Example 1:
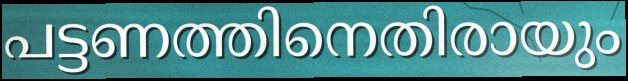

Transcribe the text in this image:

പട്ടണത്തിനെതിരായും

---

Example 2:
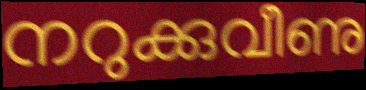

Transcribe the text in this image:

നറുക്കുവീണു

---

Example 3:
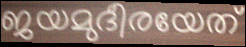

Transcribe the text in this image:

ജയമുദീരയേത്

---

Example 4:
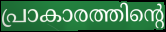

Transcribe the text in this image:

പ്രാകാരത്തിന്റെ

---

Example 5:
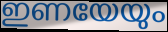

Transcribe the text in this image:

ഇണയേയും